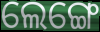
ଲେଙ୍ଗେ